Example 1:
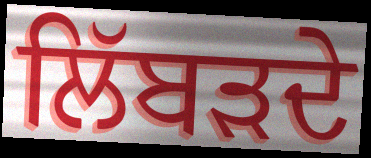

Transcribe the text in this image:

ਲਿੱਬੜਦੇ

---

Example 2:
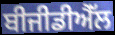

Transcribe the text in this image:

ਬੀਜੀਡੀਐੱਲ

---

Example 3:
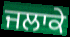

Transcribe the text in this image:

ਜਲਾਕੇ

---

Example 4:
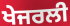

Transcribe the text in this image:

ਖੇਜਰਲੀ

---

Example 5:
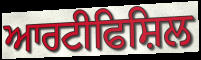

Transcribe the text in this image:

ਆਰਟੀਫਿਸ਼ਿਲ